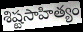
శిష్టసాహిత్యం